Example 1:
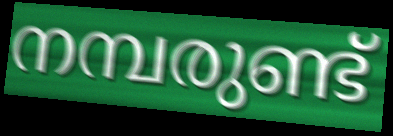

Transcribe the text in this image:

നമ്പരുണ്ട്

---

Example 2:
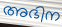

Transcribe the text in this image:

അഭിന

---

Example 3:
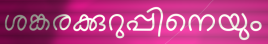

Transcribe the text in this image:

ശങ്കരക്കുറുപ്പിനെയും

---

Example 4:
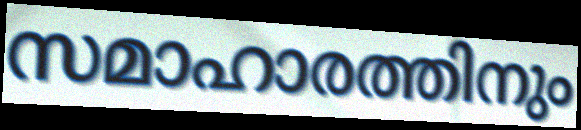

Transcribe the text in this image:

സമാഹാരത്തിനും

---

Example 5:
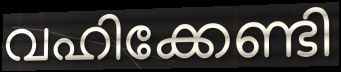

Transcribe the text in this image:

വഹിക്കേണ്ടി